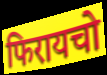
फिरायचो